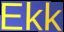
Ekk